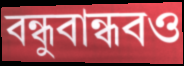
বন্ধুবান্ধবও